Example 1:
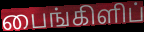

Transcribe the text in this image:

பைங்கிளிப்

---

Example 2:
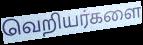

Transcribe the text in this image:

வெறியர்களை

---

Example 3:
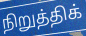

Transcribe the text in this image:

நிறுத்திக்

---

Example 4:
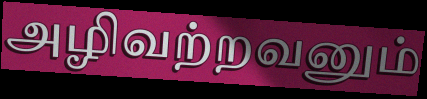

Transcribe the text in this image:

அழிவற்றவனும்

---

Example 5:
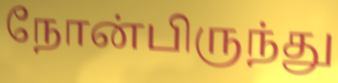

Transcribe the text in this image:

நோன்பிருந்து